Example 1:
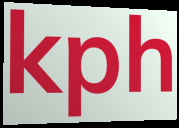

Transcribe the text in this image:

kph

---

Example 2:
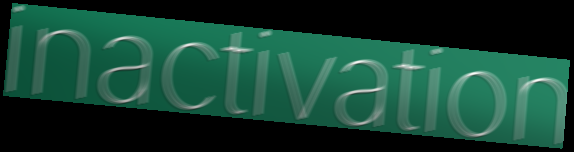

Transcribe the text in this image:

inactivation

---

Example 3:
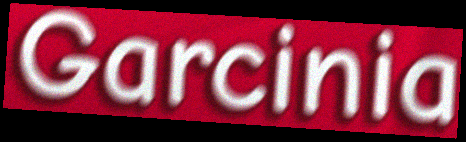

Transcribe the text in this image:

Garcinia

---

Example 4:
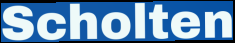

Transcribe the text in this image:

Scholten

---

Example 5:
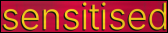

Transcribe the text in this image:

sensitised